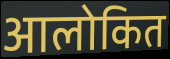
आलोकित